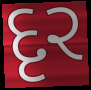
દૃર